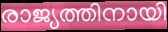
രാജ്യത്തിനായി